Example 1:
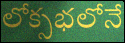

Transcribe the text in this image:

లోక్సభలోనే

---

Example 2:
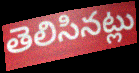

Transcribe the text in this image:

తెలిసినట్లు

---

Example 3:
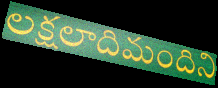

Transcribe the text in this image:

లక్షలాదిమందిని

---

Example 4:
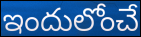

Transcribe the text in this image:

ఇందులోంచే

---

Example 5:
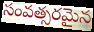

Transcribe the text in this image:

సంవత్సరమైన